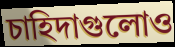
চাহিদাগুলোও